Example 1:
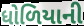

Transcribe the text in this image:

ધોળિયાની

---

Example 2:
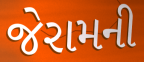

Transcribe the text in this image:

જેરામની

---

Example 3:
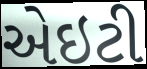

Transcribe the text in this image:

એઇટી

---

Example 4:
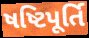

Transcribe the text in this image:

ષષ્ટિપૂર્તિ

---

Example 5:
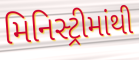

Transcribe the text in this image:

મિનિસ્ટ્રીમાંથી